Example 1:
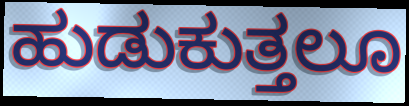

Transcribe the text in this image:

ಹುಡುಕುತ್ತಲೂ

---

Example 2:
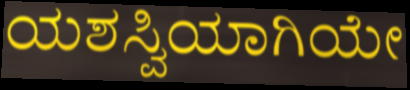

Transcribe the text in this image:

ಯಶಸ್ವಿಯಾಗಿಯೇ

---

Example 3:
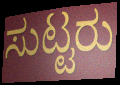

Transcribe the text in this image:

ಸುಟ್ಟರು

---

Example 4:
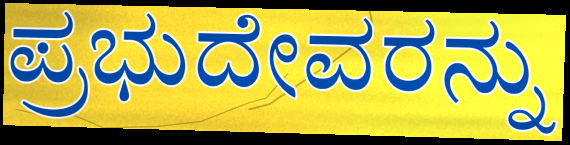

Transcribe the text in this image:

ಪ್ರಭುದೇವರನ್ನು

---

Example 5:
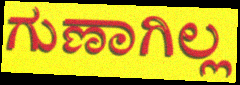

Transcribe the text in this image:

ಗುಣಾಗಿಲ್ಲ